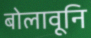
बोलावूनि